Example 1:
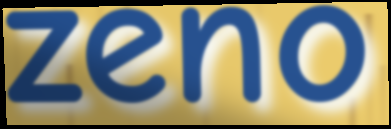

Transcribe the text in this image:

zeno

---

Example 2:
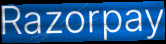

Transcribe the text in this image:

Razorpay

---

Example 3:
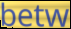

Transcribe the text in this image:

betw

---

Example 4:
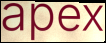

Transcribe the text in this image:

apex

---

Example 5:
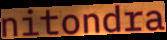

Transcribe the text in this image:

nitondra